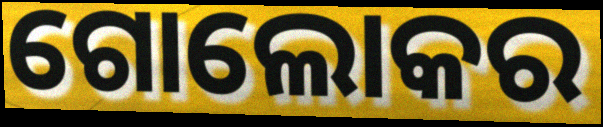
ଗୋଲୋକର